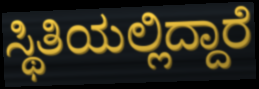
ಸ್ಥಿತಿಯಲ್ಲಿದ್ದಾರೆ